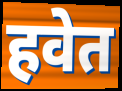
हवेत